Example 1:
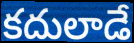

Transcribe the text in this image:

కదులాడే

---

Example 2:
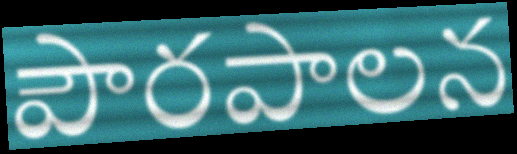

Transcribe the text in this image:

పౌరపాలన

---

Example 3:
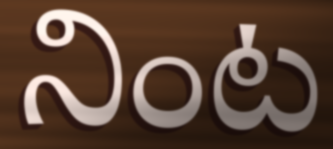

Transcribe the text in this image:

నింట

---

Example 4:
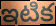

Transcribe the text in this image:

ఇటిక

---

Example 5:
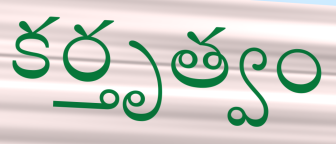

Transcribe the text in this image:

కర్తృత్వం